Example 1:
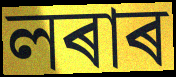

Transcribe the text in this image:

লৰাৰ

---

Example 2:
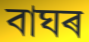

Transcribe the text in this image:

বাঘৰ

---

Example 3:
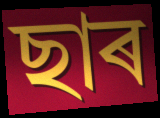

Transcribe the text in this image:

ছাৰ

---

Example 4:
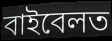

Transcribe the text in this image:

বাইবেলত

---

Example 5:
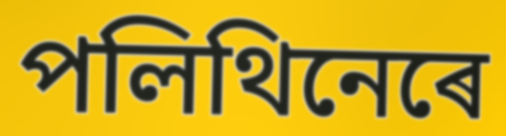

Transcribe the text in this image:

পলিথিনেৰে